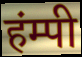
हंम्पी